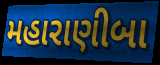
મહારાણીબા